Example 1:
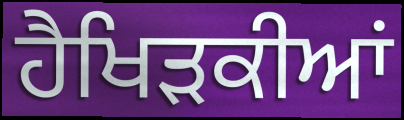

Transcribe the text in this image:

ਹੈਖਿੜਕੀਆਂ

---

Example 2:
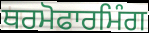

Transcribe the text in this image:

ਥਰਮੋਫਾਰਮਿੰਗ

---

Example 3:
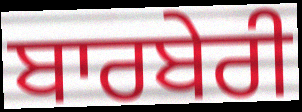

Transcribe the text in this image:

ਬਾਰਬੇਰੀ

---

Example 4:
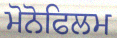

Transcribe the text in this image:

ਮੋਨੋਫਿਲਮ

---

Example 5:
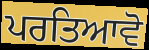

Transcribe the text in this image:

ਪਰਤਿਆਵੋ